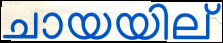
ചായയില്